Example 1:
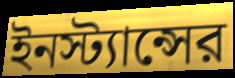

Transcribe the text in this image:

ইনস্ট্যান্সের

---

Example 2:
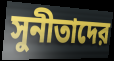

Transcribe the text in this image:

সুনীতাদের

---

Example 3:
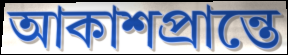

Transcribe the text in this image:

আকাশপ্রান্তে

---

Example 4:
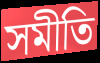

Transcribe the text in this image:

সমীতি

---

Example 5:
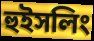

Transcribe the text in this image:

হুইসলিং